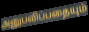
அனுபவிப்பதையும்